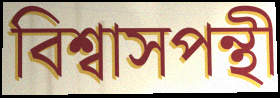
বিশ্বাসপন্থী